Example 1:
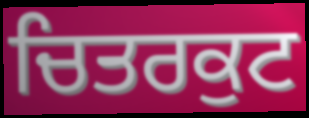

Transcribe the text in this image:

ਚਿਤਰਕੁਟ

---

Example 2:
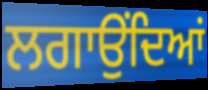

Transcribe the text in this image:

ਲਗਾਉਂਦਿਆਂ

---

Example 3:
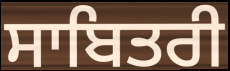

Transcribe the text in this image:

ਸਾਬਿਤਰੀ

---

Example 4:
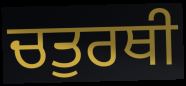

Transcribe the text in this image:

ਚਤੁਰਥੀ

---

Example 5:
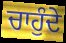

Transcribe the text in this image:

ਚਾਹੁੰਦੇ